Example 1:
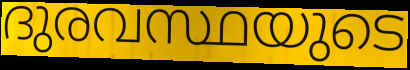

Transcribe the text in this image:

ദുരവസ്ഥയുടെ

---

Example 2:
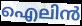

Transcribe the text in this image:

ഐലിൻ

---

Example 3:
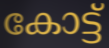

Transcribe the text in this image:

കോട്ട്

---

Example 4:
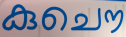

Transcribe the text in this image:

കുചൌ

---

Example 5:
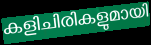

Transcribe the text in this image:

കളിചിരികളുമായി